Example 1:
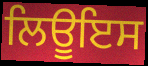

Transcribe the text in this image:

ਲਿਊਇਸ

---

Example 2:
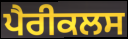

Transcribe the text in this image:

ਪੈਰੀਕਲਸ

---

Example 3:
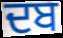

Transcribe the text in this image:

ਦਬ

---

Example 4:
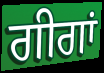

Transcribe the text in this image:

ਗੀਗਾਂ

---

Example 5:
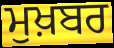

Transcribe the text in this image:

ਮੁਖ਼ਬਰ